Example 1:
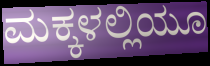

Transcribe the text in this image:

ಮಕ್ಕಳಲ್ಲಿಯೂ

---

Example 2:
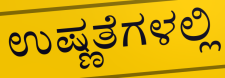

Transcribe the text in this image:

ಉಷ್ಣತೆಗಳಲ್ಲಿ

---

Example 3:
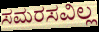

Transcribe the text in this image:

ಸಮರಸವಿಲ್ಲ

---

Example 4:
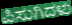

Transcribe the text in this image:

ಪಿಸುಗಿದಳು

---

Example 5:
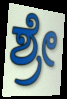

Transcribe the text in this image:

ಶ್ರೇ